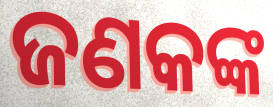
ଜଣକଙ୍କ